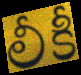
లీకీ